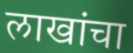
लाखांचा